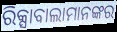
ରିକ୍ସାବାଲାମାନଙ୍କର